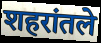
शहरांतले